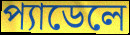
প্যাডেলে